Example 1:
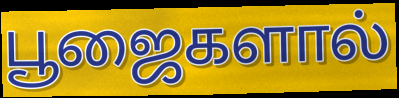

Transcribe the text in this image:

பூஜைகளால்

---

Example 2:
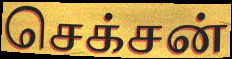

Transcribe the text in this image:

செக்சன்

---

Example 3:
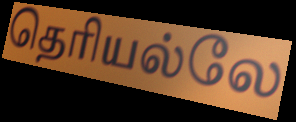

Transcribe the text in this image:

தெரியல்லே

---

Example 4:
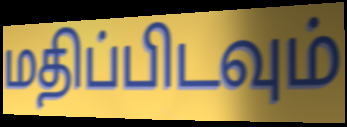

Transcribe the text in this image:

மதிப்பிடவும்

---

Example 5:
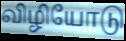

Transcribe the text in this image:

விழியோடு